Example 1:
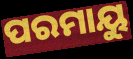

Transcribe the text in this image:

ପରମାୟୁ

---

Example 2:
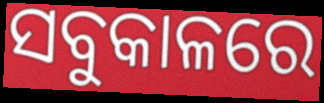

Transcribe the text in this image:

ସବୁକାଳରେ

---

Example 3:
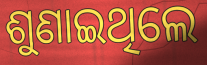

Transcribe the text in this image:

ଶୁଣାଇଥିଲେ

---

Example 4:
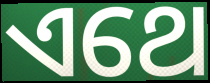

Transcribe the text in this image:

ଏଥେ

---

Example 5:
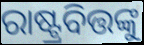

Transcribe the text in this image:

ରାଷ୍ଟ୍ରବିତ୍ତଙ୍କୁ